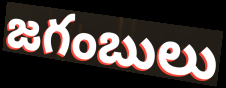
జగంబులు